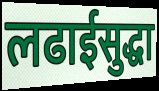
लढाईसुद्धा